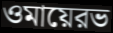
ওমায়েরভ